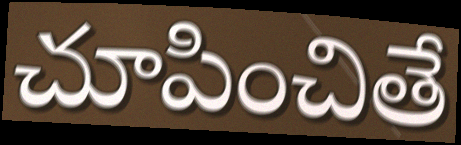
చూపించితే